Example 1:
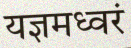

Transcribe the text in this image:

यज्ञमध्वरं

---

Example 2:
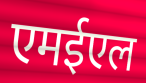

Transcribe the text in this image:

एमईएल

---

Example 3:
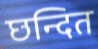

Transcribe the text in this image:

छन्दित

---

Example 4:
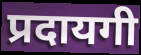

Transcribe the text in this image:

प्रदायगी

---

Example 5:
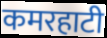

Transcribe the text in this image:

कमरहाटी